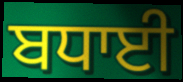
ਬਧਾਈ